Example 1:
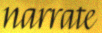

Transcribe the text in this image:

narrate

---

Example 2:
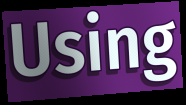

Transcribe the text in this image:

Using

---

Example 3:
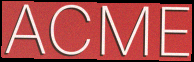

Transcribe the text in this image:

ACME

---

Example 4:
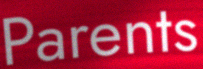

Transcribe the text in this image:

Parents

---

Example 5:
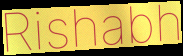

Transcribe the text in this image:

Rishabh